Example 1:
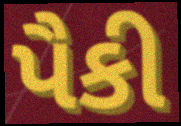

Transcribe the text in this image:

પૈકી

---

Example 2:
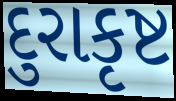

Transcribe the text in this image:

દુરાકૃષ્ટ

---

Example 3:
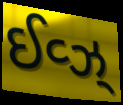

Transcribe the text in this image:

ઈવ્ઝ્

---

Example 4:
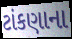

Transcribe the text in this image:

ટાંકણાના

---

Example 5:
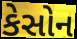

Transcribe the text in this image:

કેસોન